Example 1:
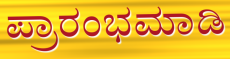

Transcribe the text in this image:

ಪ್ರಾರಂಭಮಾಡಿ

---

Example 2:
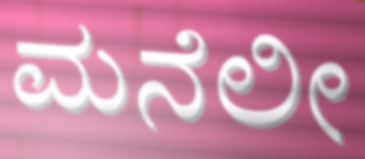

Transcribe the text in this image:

ಮನೆಲೀ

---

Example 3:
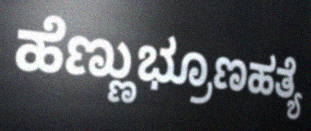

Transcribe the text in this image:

ಹೆಣ್ಣುಭ್ರೂಣಹತ್ಯೆ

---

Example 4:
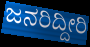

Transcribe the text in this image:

ಜನರಿದ್ದೀರಿ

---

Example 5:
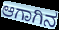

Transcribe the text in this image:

ಆಗಾಗಿನ